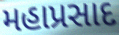
મહાપ્રસાદ